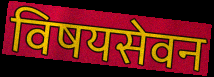
विषयसेवन